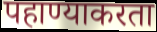
पहाण्याकरता